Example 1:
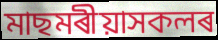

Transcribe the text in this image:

মাছমৰীয়াসকলৰ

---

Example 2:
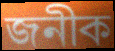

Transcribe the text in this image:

জনীক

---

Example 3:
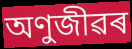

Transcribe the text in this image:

অণুজীৱৰ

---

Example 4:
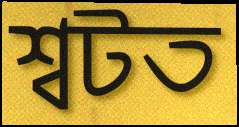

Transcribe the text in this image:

শ্বটত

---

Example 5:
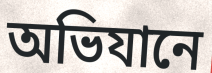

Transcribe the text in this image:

অভিযানে